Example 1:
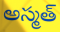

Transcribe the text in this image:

అస్మత్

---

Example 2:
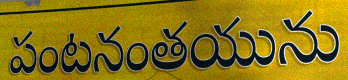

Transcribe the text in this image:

పంటనంతయును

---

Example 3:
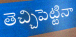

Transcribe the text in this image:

తెచ్చిపెట్టినా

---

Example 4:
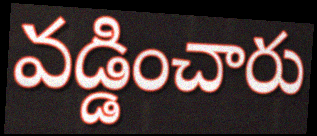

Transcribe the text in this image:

వడ్డించారు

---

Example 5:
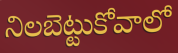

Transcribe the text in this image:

నిలబెట్టుకోవాలో